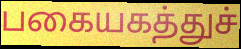
பகையகத்துச்